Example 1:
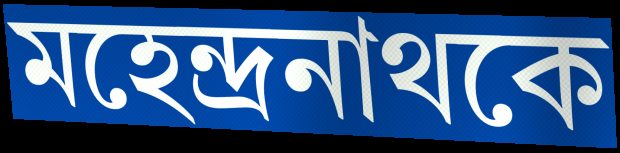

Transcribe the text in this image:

মহেন্দ্রনাথকে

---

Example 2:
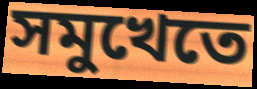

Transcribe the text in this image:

সমুখেতে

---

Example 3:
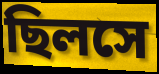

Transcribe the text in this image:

ছিলসে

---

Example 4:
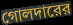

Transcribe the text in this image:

গোলদারের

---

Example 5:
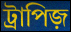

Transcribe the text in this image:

ট্রাপিজ়